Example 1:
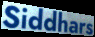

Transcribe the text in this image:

Siddhars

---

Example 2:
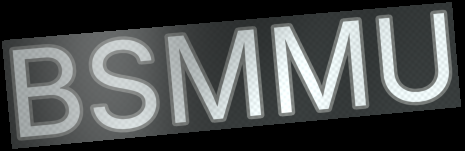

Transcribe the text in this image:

BSMMU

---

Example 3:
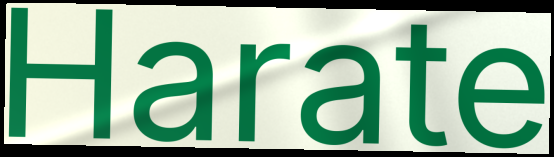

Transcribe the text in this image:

Harate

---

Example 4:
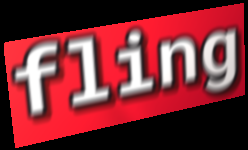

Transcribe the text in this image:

fling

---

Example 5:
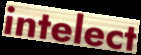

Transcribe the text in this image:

intelect